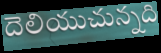
దెలియుచున్నది